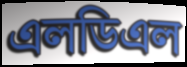
এলডিএল